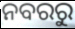
ନବରରୁ